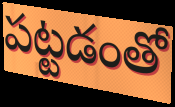
పట్టడంతో